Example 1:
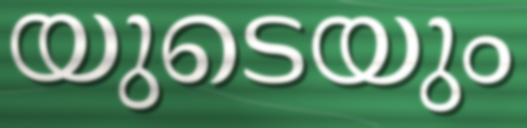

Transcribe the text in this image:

യുടെയും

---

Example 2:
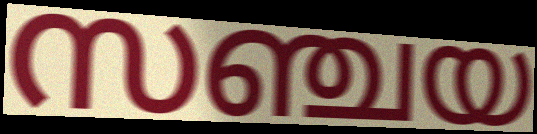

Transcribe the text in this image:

സഞ്ചയ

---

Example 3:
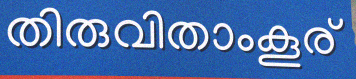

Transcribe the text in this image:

തിരുവിതാംകൂര്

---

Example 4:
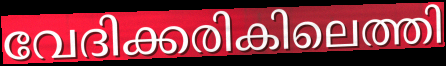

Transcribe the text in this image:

വേദിക്കരികിലെത്തി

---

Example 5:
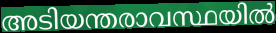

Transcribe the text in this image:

അടിയന്തരാവസ്ഥയിൽ